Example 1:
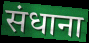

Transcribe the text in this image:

संधाना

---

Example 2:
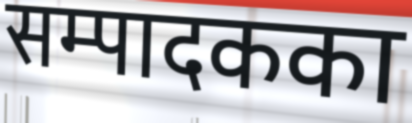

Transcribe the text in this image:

सम्पादकका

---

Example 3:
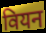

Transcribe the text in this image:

वियन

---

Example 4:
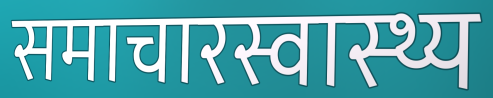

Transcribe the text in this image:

समाचारस्वास्थ्य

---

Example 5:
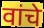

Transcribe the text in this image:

वांचे